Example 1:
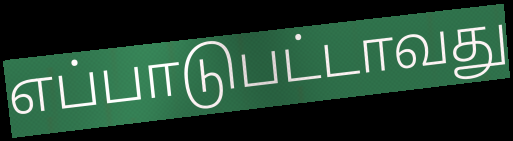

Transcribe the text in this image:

எப்பாடுபட்டாவது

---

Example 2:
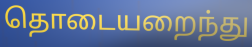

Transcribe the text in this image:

தொடையறைந்து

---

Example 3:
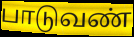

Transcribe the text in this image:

பாடுவண்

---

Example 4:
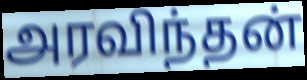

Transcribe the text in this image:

அரவிந்தன்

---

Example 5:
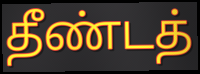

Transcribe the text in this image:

தீண்டத்